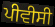
ਪੀਵੀਸੀ